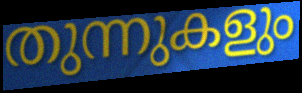
തുന്നുകളും